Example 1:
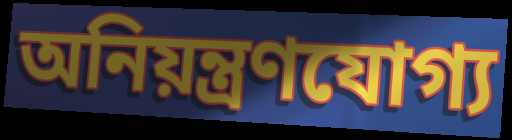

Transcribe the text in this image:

অনিয়ন্ত্রণযোগ্য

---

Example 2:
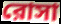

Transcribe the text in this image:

রোসা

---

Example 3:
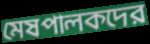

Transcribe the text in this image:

মেষপালকদের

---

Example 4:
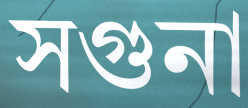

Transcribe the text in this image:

সগুনা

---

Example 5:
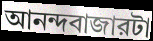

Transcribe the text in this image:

আনন্দবাজারটা